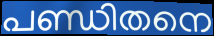
പണ്ഡിതനെ